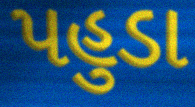
પહુડા